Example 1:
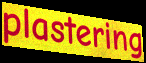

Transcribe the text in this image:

plastering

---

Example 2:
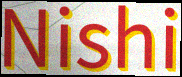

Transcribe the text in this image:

Nishi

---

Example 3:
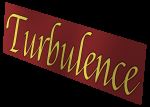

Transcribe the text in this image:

Turbulence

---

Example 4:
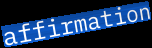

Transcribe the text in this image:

affirmation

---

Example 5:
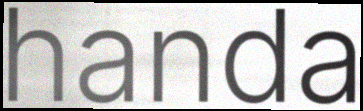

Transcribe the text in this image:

handa